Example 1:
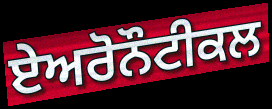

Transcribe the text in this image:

ਏਅਰੋਨੌਟੀਕਲ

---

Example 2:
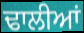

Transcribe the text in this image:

ਢਾਲੀਆਂ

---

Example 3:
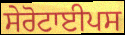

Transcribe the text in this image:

ਸੇਰੋਟਾਈਪਸ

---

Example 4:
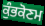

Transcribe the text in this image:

ਕੁੰਭਕੋਣਮ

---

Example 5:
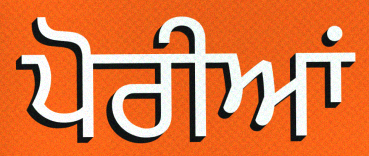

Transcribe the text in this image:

ਪੋਰੀਆਂ